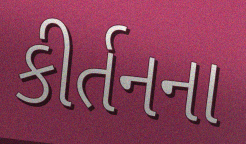
કીર્તનના